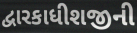
દ્વારકાધીશજીની